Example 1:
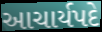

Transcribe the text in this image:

આચાર્યપદે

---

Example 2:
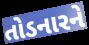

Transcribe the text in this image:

તોડનારને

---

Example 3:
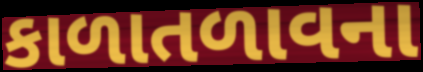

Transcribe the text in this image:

કાળાતળાવના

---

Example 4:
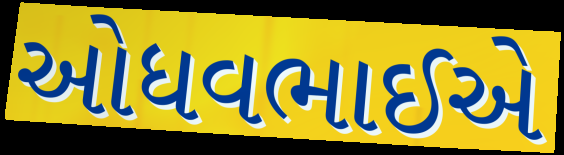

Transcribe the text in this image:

ઓધવભાઈએ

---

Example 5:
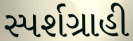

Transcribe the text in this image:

સ્પર્શગ્રાહી